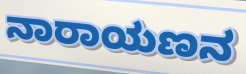
ನಾರಾಯಣನ